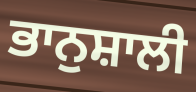
ਭਾਨੁਸ਼ਾਲੀ